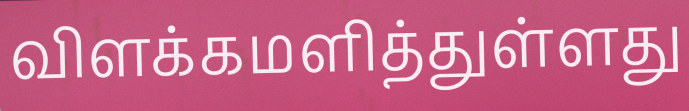
விளக்கமளித்துள்ளது